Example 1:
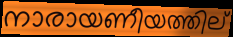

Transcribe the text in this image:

നാരായണീയത്തില്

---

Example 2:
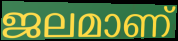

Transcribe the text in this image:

ജലമാണ്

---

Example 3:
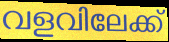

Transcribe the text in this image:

വളവിലേക്ക്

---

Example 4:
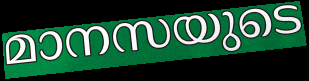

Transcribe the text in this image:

മാനസയുടെ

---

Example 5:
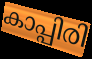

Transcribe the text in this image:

കാപ്പിരി